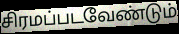
சிரமப்படவேண்டும்